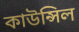
কাউন্সিল